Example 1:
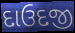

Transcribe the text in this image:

દાઉદજી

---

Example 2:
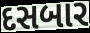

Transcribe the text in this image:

દસબાર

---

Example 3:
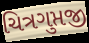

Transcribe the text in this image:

ચિત્રગુપ્તજી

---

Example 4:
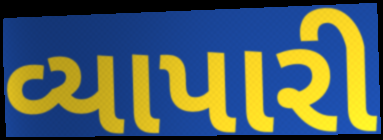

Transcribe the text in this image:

વ્યાપારી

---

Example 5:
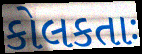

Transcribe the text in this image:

કોલકતાઃ